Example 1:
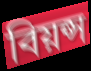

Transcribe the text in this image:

বিয়ন্স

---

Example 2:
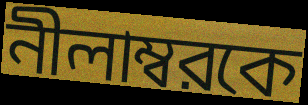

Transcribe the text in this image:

নীলাম্বরকে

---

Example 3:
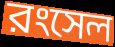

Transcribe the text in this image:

রংসেল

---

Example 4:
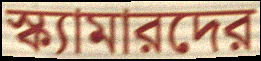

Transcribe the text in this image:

স্ক্যামারদের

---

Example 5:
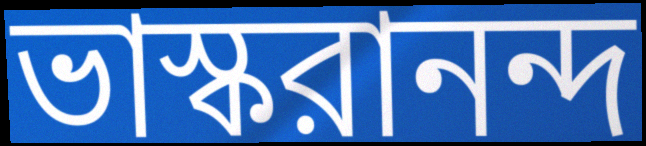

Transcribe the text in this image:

ভাস্করানন্দ